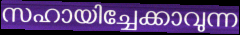
സഹായിച്ചേക്കാവുന്ന